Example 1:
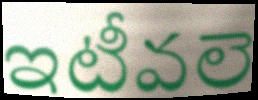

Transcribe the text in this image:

ఇటీవలె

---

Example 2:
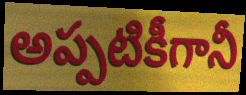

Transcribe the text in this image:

అప్పటికీగానీ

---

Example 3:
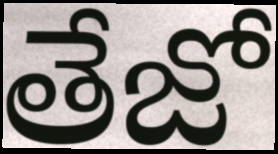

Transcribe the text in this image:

తేజో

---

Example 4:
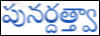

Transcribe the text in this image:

పునర్దత్త్వా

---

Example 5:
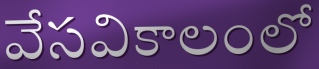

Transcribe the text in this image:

వేసవికాలంలో